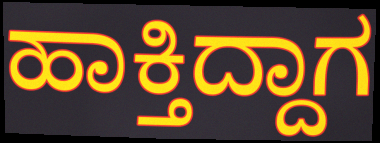
ಹಾಕ್ತಿದ್ದಾಗ